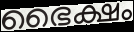
ഭൈക്ഷം